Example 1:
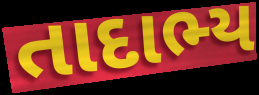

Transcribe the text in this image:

તાદાભ્ય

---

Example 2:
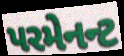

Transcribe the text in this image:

પરમેનન્ટ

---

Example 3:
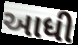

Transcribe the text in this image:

આધી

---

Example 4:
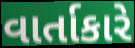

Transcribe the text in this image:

વાર્તાકારે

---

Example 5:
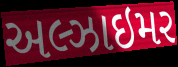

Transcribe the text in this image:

અલ્ઝાઇમર